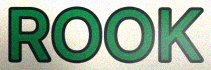
ROOK